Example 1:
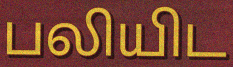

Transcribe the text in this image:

பலியிட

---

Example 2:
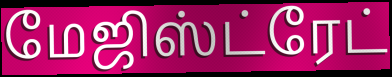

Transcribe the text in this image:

மேஜிஸ்ட்ரேட்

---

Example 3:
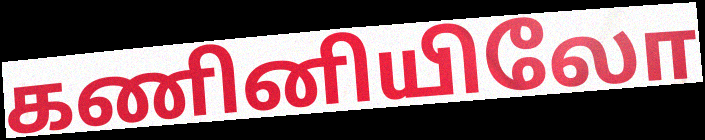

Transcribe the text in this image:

கணினியிலோ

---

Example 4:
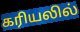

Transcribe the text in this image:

கரியலில்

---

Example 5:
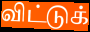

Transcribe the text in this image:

விட்டுக்